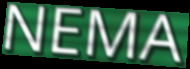
NEMA